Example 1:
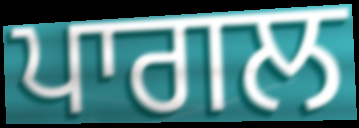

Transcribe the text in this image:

ਪਾਗਲ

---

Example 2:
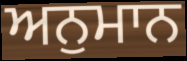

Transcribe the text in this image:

ਅਨੁਮਾਨ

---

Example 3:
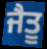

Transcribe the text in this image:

ਜੈਤੂ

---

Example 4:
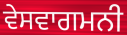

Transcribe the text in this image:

ਵੇਸਵਾਗਮਨੀ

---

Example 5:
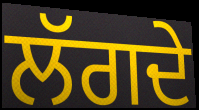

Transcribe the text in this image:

ਲੱਗਦੇ